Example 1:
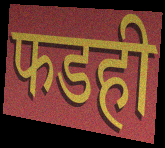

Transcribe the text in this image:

फडही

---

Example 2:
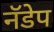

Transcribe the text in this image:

नॅडेप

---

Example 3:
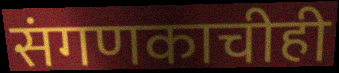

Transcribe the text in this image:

संगणकाचीही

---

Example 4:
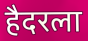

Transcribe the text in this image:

हैदरला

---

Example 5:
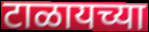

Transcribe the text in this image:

टाळायच्या